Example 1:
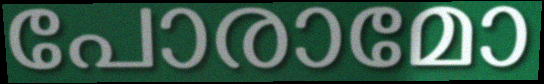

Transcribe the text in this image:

പോരാമോ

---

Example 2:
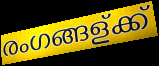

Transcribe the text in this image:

രംഗങ്ങള്ക്ക്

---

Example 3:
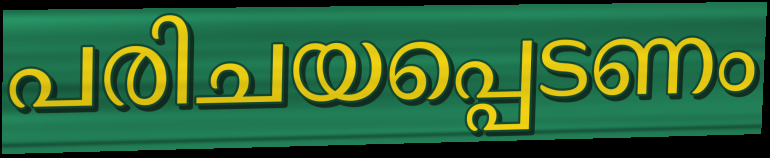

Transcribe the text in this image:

പരിചയപ്പെടണം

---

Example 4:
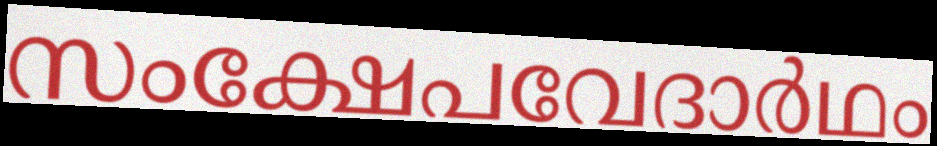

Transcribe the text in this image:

സംക്ഷേപവേദാർഥം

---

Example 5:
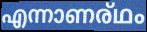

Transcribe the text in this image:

എന്നാണര്ഥം